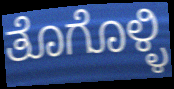
ತೊಗೊಳ್ಳಿ